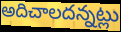
అదిచాలదన్నట్లు